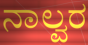
ನಾಲ್ವರ